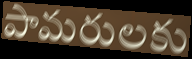
పామరులకు